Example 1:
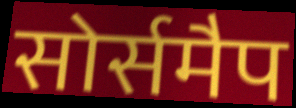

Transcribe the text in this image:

सोर्समैप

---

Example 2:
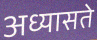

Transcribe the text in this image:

अध्यासते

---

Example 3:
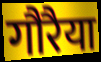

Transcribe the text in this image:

गौरैया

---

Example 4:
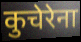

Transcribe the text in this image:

कुचेरेना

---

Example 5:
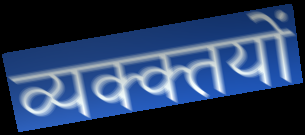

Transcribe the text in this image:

व्यक्क्तयों